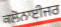
ਕਲੋਨਾਈਜਰ